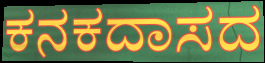
ಕನಕದಾಸದ